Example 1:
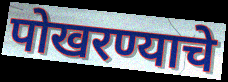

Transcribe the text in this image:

पोखरण्याचे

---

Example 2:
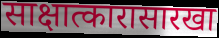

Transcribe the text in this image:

साक्षात्कारासारखा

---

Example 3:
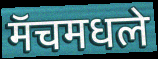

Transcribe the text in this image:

मॅचमधले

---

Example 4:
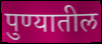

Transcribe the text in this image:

पुण्यातील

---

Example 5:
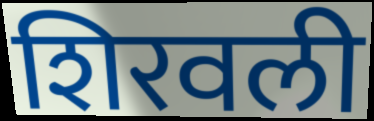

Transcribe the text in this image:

शिरवली